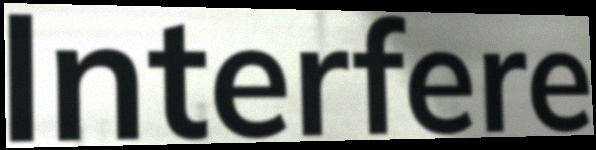
Interfere